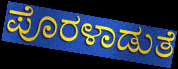
ಪೊರಳಾಡುತೆ